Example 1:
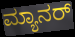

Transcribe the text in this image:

ಮ್ಯಾನರ್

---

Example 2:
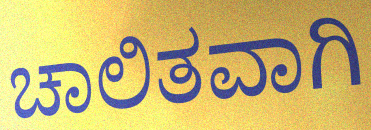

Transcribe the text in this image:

ಚಾಲಿತವಾಗಿ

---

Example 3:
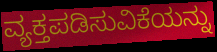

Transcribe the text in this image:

ವ್ಯಕ್ತಪಡಿಸುವಿಕೆಯನ್ನು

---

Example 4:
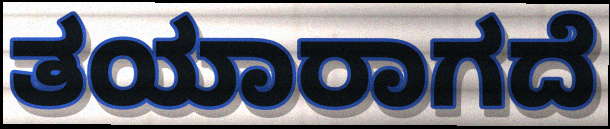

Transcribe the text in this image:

ತಯಾರಾಗದೆ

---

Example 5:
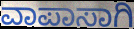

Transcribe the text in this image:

ವಾಪಾಸಾಗಿ